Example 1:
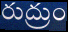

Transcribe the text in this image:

రుద్రుం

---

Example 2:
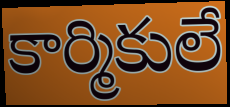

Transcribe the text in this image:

కార్మికులే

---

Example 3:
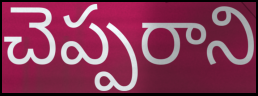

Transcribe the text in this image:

చెప్పరాని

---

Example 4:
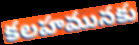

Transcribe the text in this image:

కలహమునకు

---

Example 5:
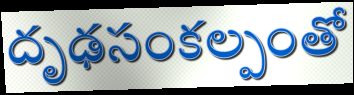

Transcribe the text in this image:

దృఢసంకల్పంతో